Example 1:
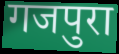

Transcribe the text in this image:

गजपुरा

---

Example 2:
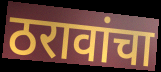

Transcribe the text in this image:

ठरावांचा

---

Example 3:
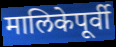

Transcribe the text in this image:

मालिकेपूर्वी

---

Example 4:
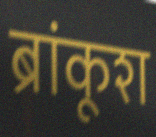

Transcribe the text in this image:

ब्रांकूश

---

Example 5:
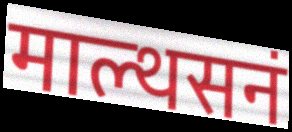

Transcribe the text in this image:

माल्थसनं